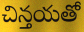
చిన్తయతో